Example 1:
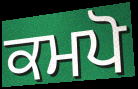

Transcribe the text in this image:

ਕਮਪੋ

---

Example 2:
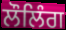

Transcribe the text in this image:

ਲੌਲਿੰਗ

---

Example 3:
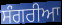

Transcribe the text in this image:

ਸੰਗਰੀਆ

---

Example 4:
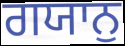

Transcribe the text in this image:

ਗਯਾਨੁ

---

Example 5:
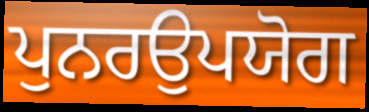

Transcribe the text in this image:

ਪੁਨਰਉਪਯੋਗ